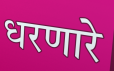
धरणारे